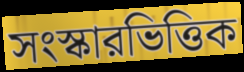
সংস্কারভিত্তিক